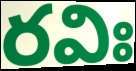
రవిః